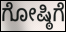
ಗೋಷ್ಠಿಗೆ